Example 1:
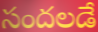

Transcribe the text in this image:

సందలడే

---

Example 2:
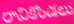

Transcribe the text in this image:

రావికొండలు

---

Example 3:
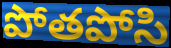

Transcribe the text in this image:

పోతపోసి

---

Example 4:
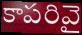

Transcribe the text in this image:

కాపరివై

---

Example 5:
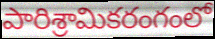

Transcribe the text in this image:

పారిశ్రామికరంగంలో